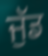
ਜੁੱਡ